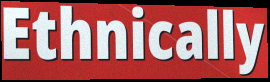
Ethnically